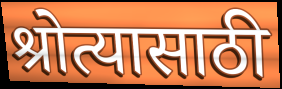
श्रोत्यासाठी